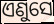
ଏଣୁସେ